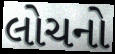
લોચનો